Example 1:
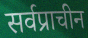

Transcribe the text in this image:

सर्वप्राचीन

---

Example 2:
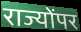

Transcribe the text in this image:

राज्योंपर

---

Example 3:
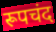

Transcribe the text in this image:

रूपचंद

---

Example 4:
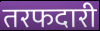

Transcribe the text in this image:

तरफदारी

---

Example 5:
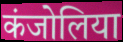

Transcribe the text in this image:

कंजोलिया